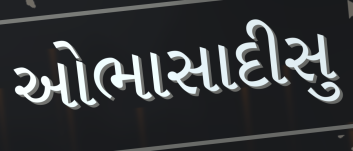
ઓભાસાદીસુ